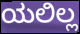
ಯಲಿಲ್ಲ